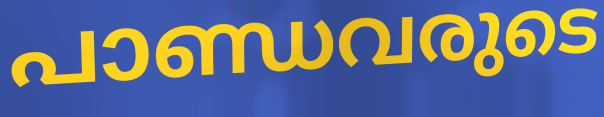
പാണ്ഡവരുടെ